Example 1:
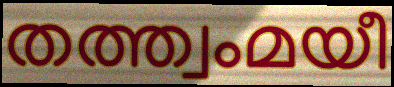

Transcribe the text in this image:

തത്ത്വംമയീ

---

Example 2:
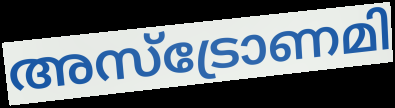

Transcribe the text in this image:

അസ്ട്രോണമി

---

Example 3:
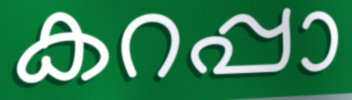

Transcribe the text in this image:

കറപ്പാ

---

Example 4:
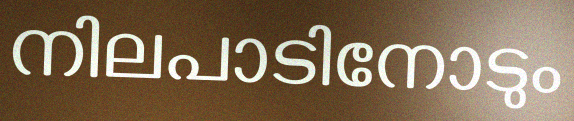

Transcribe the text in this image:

നിലപാടിനോടും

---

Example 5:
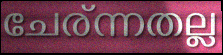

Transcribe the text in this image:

ചേര്ന്നതല്ല